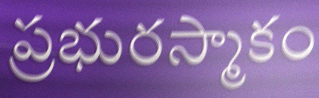
ప్రభురస్మాకం